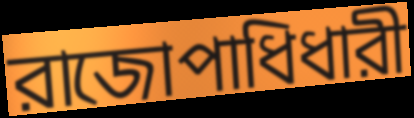
রাজোপাধিধারী